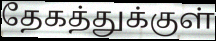
தேகத்துக்குள்